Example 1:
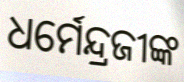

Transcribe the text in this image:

ଧର୍ମେନ୍ଦ୍ରଜୀଙ୍କ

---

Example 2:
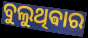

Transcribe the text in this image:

ବୁଲୁଥିଵାର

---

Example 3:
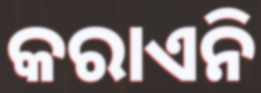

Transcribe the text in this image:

କରାଏନି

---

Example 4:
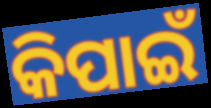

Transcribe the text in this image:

କିପାଇଁ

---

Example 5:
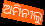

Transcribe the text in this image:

ଅମିନୀଲୁ